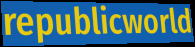
republicworld